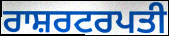
ਰਾਸ਼ਰਟਰਪਤੀ